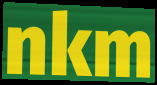
nkm